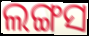
ଲଙ୍ଗସ